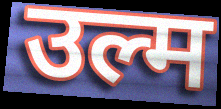
उल्म